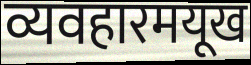
व्यवहारमयूख